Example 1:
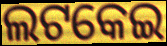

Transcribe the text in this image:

ଲଟକେଇ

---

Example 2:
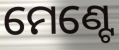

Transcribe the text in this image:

ମେଣ୍ଟେ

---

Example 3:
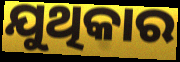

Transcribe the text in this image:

ଯୁଥିକାର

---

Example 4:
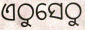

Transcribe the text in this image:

ଏଠୁସେଠୁ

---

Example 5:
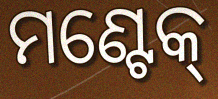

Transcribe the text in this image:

ମଣ୍ଟେକ୍